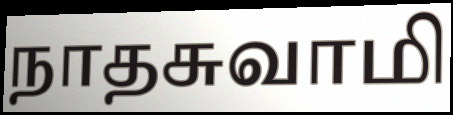
நாதசுவாமி